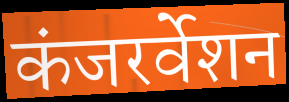
कंजरर्वेशन